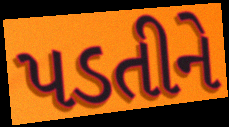
પડતીને